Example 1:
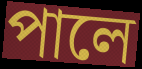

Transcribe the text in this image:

পালে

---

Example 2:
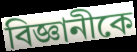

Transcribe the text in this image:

বিজ্ঞানীকে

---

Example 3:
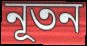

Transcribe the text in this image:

নূতন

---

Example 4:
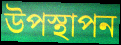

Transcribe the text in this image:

উপস্থাপন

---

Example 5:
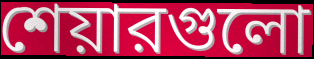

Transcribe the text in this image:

শেয়ারগুলো